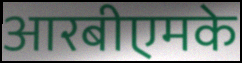
आरबीएमके